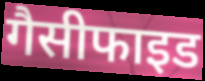
गैसीफाइड